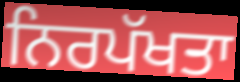
ਨਿਰਪੱਖਤਾ